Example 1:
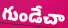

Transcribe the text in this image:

గుండేచా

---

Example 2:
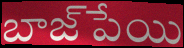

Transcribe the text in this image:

బాజ్‌పేయి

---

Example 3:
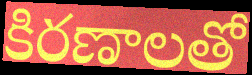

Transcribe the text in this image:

కిరణాలతో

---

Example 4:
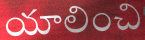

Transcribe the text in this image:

యాలించి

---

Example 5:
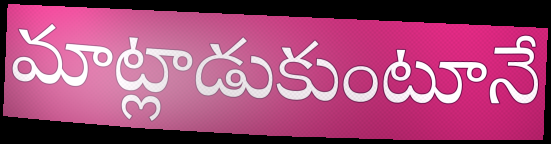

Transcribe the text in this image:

మాట్లాడుకుంటూనే